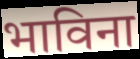
भाविना